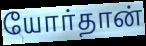
யோர்தான்